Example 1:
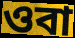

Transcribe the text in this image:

ওবা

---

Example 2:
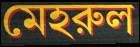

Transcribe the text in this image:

মেহরুল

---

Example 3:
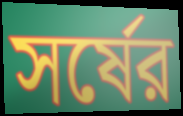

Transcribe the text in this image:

সর্ষের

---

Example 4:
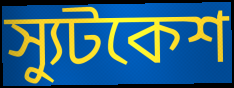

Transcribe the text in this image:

স্যুটকেশ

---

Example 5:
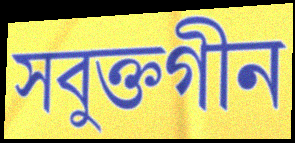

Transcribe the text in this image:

সবুক্তগীন